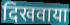
दिखवाया